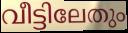
വീട്ടിലേതും